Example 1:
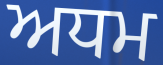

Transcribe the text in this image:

ਅਧਮ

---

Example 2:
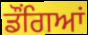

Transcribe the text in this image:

ਡੌਂਗਿਆਂ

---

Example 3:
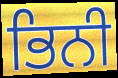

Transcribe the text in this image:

ਭਿਨੀ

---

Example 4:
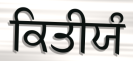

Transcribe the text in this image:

ਕਿਤੀਯੰ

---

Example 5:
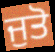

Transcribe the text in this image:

ਜੁਤੋ